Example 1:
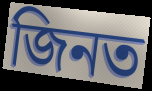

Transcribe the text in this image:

জিনত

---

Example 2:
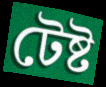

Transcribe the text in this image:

টেষ্ট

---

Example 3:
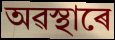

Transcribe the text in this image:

অৱস্থাৰে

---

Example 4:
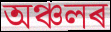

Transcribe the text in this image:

অঞ্চলৰ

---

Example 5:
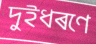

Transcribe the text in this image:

দুইধৰণে